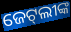
ଜେଟ୍‌ଲୀଙ୍କ